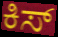
ಕಿಸ್